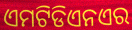
ଏମଟିଡିଏନଏର